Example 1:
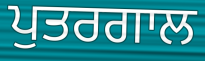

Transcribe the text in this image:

ਪੁਤਰਗਾਲ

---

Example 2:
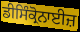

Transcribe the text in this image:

ਡੀਸਿੰਕ੍ਰੋਨਾਈਜ਼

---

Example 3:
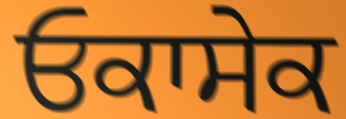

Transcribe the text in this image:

ਓਕਾਸੇਕ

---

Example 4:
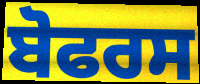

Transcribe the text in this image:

ਬੋਫਰਸ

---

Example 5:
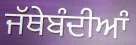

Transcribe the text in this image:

ਜੱਥੇਬੰਦੀਆੰ